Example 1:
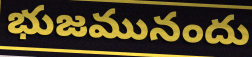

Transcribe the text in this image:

భుజమునందు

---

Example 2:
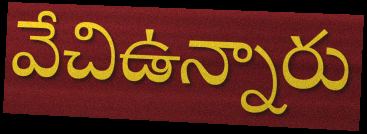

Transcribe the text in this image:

వేచిఉన్నారు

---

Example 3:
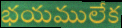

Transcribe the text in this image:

భయములేక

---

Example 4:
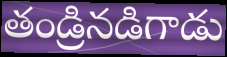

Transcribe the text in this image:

తండ్రినడిగాడు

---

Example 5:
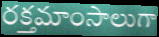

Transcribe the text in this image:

రక్తమాంసాలుగా